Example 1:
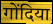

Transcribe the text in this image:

गोंदिया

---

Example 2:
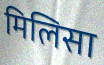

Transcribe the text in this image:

मिलिसा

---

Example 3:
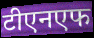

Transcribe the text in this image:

टीएनएफ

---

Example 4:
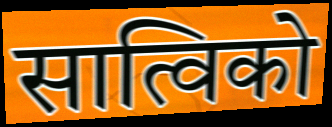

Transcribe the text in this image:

सात्विको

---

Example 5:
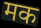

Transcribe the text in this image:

मक